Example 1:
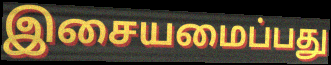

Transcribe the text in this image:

இசையமைப்பது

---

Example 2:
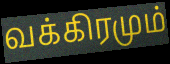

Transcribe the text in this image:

வக்கிரமும்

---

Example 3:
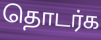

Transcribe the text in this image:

தொடர்க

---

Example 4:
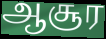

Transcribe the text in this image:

ஆசூர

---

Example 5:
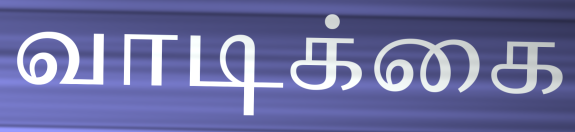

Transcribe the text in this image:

வாடிக்கை